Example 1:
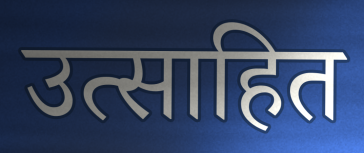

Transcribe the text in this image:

उत्साहित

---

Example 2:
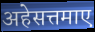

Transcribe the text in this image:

अहेसत्तमाए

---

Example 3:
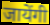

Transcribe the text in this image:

जायेंगी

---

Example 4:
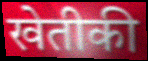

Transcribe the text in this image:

खेतीकी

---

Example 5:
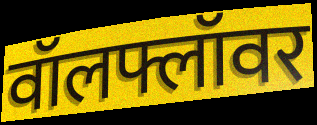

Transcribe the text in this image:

वॉलफ्लॉवर